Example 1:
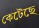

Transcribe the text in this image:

কেটেছে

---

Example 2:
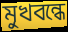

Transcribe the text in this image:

মুখবন্ধে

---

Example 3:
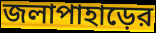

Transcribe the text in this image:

জলাপাহাড়ের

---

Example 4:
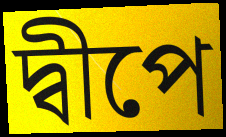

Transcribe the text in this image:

দ্বীপে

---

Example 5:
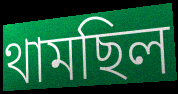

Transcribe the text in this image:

থামছিল